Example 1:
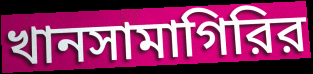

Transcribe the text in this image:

খানসামাগিরির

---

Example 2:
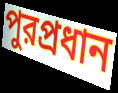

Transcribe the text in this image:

পুরপ্রধান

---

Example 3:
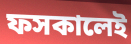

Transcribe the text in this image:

ফসকালেই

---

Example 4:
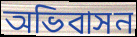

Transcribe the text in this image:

অভিবাসন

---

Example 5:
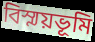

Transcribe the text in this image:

বিস্ময়ভূমি